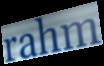
rahm